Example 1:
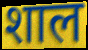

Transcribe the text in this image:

शाल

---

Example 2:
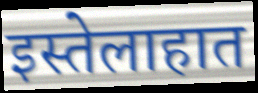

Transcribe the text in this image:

इस्तेलाहात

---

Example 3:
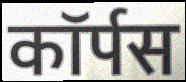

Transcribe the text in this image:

कॉर्पस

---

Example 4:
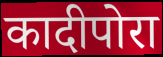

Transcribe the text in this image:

कादीपोरा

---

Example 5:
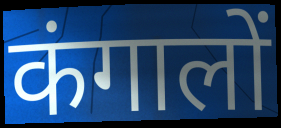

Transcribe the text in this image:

कंगालों